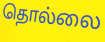
தொல்லை